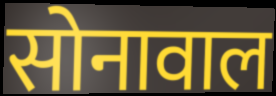
सोनावाल